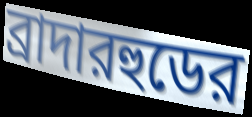
ব্রাদারহুডের